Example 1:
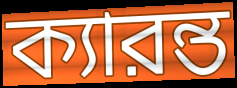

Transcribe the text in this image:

ক্যারন্ত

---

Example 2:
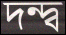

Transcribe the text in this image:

দন্দ্ব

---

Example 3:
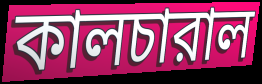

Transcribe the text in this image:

কালচারাল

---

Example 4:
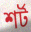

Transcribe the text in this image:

শর্ট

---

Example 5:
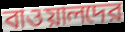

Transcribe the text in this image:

বাওয়ালদের